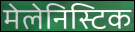
मेलेनिस्टिक